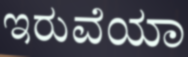
ಇರುವೆಯಾ